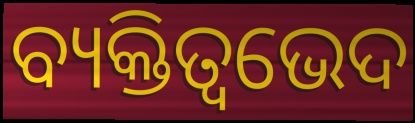
ବ୍ୟକ୍ତିତ୍ୱଭେଦ